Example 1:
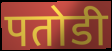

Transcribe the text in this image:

पतोडी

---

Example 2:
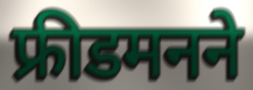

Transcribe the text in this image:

फ्रीडमनने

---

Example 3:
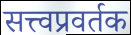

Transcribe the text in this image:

सत्त्वप्रवर्तक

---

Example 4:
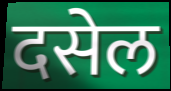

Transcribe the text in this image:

दसेल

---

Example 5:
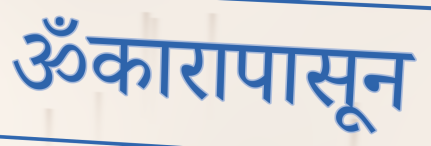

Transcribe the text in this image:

ॐकारापासून